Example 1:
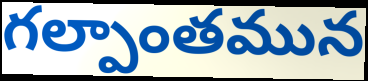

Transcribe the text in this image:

గల్పాంతమున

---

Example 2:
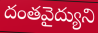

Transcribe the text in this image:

దంతవైద్యుని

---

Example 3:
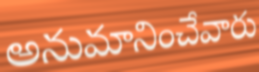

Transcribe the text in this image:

అనుమానించేవారు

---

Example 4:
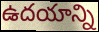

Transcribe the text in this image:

ఉదయాన్ని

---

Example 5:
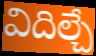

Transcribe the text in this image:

విదిల్చే